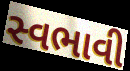
સ્વભાવી